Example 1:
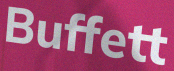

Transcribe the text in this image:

Buffett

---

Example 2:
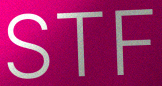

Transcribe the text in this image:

STF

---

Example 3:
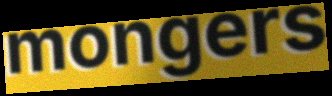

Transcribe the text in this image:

mongers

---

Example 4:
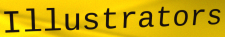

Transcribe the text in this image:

Illustrators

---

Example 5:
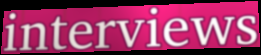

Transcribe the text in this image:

interviews